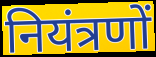
नियंत्रणों